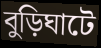
বুড়িঘাটে